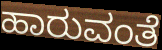
ಹಾರುವಂತೆ